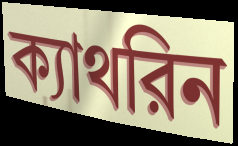
ক্যাথরিন